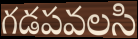
గడపవలసి